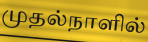
முதல்நாளில்